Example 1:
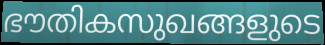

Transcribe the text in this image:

ഭൗതികസുഖങ്ങളുടെ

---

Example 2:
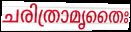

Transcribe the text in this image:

ചരിത്രാമൃതൈഃ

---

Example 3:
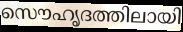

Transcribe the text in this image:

സൌഹൃദത്തിലായി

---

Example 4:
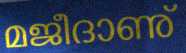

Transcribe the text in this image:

മജീദാണു്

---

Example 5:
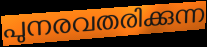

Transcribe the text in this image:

പുനരവതരിക്കുന്ന